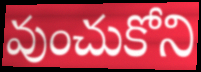
వుంచుకోని